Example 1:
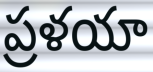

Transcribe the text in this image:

ప్రళయా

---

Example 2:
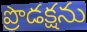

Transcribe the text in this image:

ప్రొడక్షను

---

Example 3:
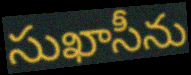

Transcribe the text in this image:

సుఖాసీను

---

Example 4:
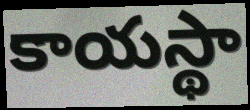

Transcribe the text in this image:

కాయస్థా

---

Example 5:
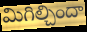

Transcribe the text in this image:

మిగిల్చిందా